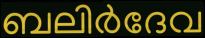
ബലിർദേവ